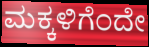
ಮಕ್ಕಳಿಗೆಂದೇ